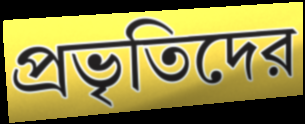
প্রভৃতিদের